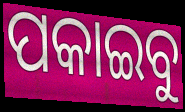
ପକାଇବୁ